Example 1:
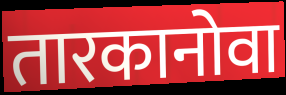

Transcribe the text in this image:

तारकानोवा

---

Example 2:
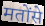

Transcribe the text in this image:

मतोंसे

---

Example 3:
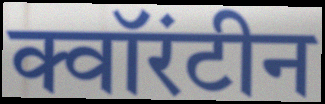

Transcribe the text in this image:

क्वॉरंटीन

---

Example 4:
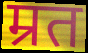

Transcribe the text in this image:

म्रत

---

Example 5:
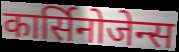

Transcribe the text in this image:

कार्सिनोजेन्स